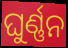
ଘୁର୍ଣ୍ଣନ